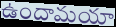
ఉందామయా